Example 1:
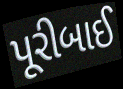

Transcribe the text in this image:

પૂરીબાઈ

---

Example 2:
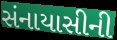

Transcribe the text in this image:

સંનાયાસીની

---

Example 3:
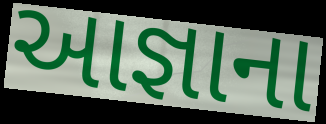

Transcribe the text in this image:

આજ્ઞાના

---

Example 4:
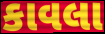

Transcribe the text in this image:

કાવલા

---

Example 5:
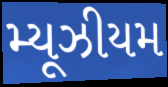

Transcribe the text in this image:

મ્યૂઝીયમ